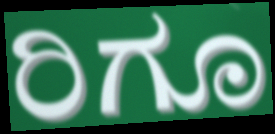
ರಿಗೂ